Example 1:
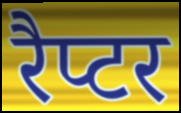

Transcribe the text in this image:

रैप्टर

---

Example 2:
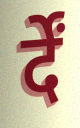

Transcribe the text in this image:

र्दें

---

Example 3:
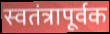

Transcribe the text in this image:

स्वतंत्रापूर्वक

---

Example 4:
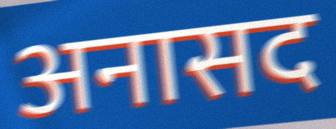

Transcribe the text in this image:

अनासद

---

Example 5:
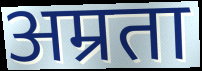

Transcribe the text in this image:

अम्रता